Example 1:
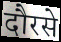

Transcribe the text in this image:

दौरसे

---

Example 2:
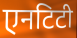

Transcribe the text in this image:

एनटिटी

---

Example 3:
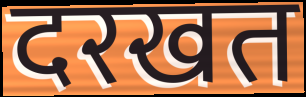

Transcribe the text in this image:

दरखत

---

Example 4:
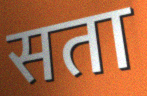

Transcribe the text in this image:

सता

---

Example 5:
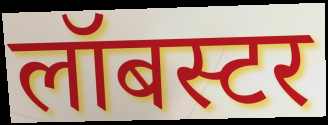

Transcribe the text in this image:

लॉबस्टर